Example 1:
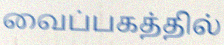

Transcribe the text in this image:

வைப்பகத்தில்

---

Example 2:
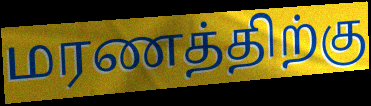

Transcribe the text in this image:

மரணத்திற்கு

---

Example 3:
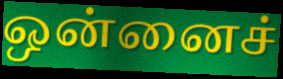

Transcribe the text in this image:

ஒன்னைச்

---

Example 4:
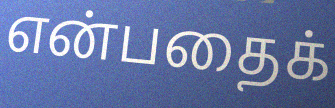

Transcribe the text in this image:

என்பதைக்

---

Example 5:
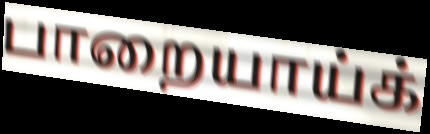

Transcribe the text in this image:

பாறையாய்க்